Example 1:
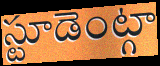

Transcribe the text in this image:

స్టూడెంట్గా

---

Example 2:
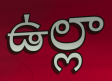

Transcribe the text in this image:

ఉల్లా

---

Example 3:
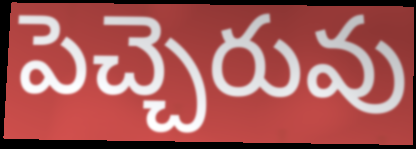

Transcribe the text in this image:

పెచ్చెరువు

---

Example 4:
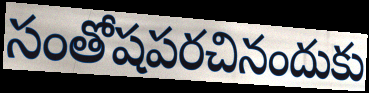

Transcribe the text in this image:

సంతోషపరచినందుకు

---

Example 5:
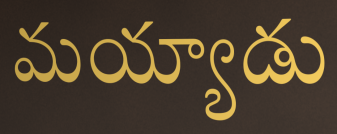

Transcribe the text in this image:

మయ్యాడు